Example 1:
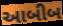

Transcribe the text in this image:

આબીબ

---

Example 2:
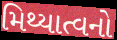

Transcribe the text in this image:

મિથ્યાત્વનો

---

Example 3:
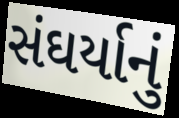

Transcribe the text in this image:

સંઘર્યાનું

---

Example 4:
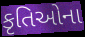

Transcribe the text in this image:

કૃતિઓના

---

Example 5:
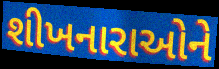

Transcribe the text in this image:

શીખનારાઓને